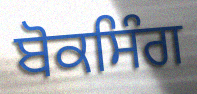
ਬੋਕਸਿੰਗ